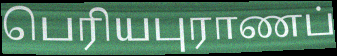
பெரியபுராணப்